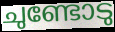
ചുണ്ടോടു